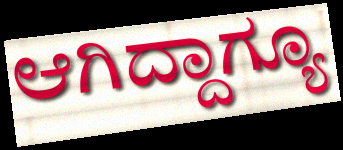
ಆಗಿದ್ದಾಗ್ಯೂ